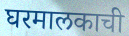
घरमालकाची